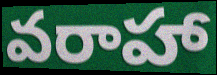
వరాహా